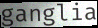
ganglia